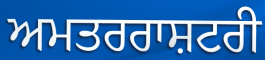
ਅਮਤਰਰਾਸ਼ਟਰੀ